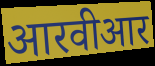
आरवीआर